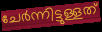
ചേർന്നിട്ടുള്ളത്